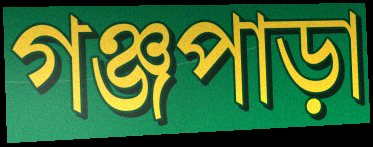
গঞ্জপাড়া